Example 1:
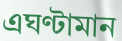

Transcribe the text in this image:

এঘণ্টামান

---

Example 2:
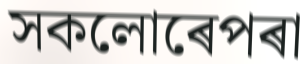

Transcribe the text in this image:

সকলোৰেপৰা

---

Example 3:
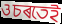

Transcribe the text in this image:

ওচৰতেই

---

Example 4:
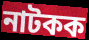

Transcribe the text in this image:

নাটকক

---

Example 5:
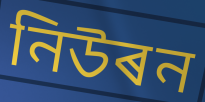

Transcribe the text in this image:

নিউৰন